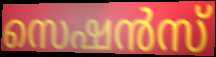
സെഷൻസ്